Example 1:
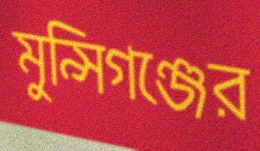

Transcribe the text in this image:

মুন্সিগঞ্জের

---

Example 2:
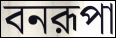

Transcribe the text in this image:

বনরূপা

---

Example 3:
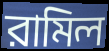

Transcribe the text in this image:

রামিল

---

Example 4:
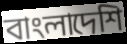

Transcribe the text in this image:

বাংলাদেশি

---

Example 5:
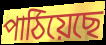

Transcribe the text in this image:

পাঠিয়েছে